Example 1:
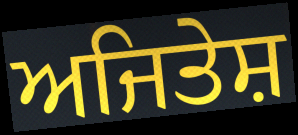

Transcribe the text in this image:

ਅਜਿਤੇਸ਼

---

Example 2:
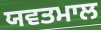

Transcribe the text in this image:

ਯਵਤਮਾਲ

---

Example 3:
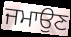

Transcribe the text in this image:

ਜਮਾਉਣ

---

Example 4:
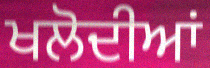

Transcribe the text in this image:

ਖਲੋਦੀਆਂ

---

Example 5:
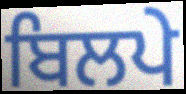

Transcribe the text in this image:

ਬਿਲਪੇ